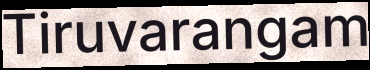
Tiruvarangam